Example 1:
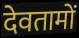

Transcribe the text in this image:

देवतामों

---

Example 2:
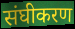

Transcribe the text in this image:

संघीकरण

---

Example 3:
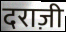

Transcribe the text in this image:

दराज़ी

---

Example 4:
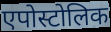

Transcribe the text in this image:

एपोस्टोलिक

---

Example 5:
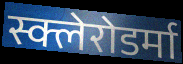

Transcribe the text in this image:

स्क्लेरोडर्मा